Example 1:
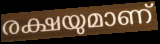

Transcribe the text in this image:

രക്ഷയുമാണ്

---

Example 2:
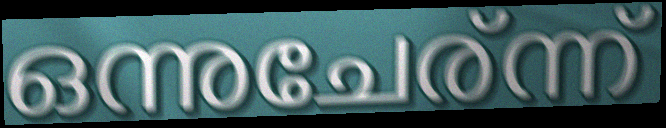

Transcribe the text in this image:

ഒന്നുചേര്ന്ന്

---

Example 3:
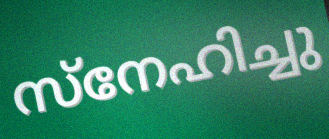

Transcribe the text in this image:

സ്നേഹിച്ചു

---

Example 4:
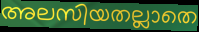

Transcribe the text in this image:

അലസിയതല്ലാതെ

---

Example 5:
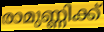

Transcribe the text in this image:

രാമുണ്ണിക്ക്